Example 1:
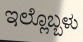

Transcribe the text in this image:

ಇಲ್ಲೊಬ್ಬಳು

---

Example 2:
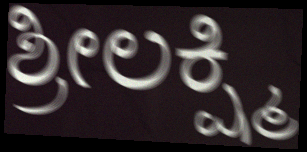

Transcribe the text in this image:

ಶ್ರೀಲಕ್ಷ್ಮಿ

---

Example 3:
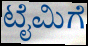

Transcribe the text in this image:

ಟೈಮಿಗೆ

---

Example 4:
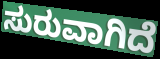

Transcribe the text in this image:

ಸುರುವಾಗಿದೆ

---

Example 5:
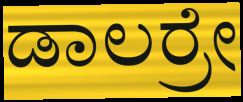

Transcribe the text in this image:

ಡಾಲರ್ರೇ